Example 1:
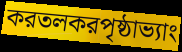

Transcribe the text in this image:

করতলকরপৃষ্ঠাভ্যাং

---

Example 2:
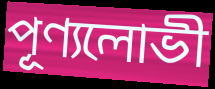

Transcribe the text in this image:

পূণ্যলোভী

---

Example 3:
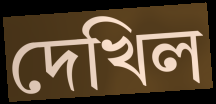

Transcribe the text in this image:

দেখিল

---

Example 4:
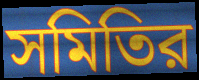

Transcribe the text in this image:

সমিতির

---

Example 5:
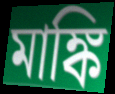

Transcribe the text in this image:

মাঙ্কি